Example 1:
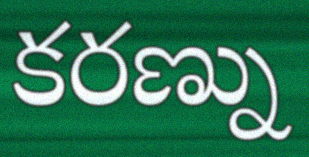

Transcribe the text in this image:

కరణ్ను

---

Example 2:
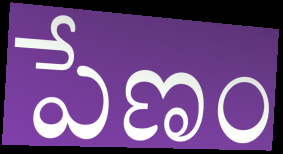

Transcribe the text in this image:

పేణం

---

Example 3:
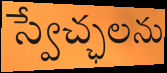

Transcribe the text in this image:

స్వేచ్ఛలను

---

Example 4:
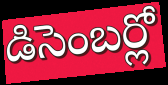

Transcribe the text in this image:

డిసెంబర్లో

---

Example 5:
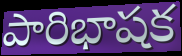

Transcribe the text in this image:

పారిభాషక